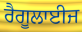
ਰੈਗੂਲਾਈਜ